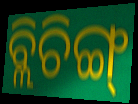
ବ୍ଲିଚିଙ୍ଗ୍